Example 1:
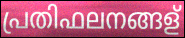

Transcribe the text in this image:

പ്രതിഫലനങ്ങള്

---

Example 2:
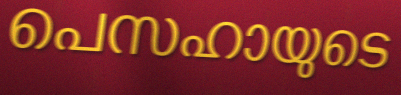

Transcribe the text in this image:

പെസഹായുടെ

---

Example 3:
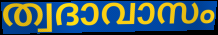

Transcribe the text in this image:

ത്വദാവാസം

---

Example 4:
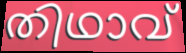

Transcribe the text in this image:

തിഥാവ്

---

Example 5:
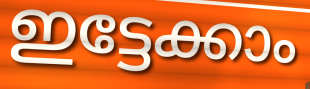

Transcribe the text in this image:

ഇട്ടേക്കാം